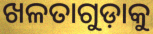
ଖଳତାଗୁଡ଼ାକୁ